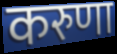
करुणा